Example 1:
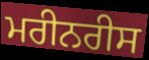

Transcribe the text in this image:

ਮਰੀਨਰੀਸ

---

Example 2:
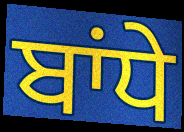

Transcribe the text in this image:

ਬਾਂਧੇ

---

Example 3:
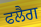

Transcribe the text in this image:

ਫਲੈਗ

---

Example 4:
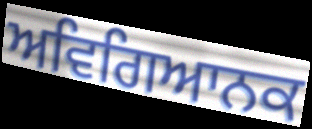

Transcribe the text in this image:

ਅਵਿਗਿਆਨਕ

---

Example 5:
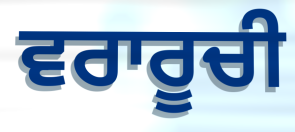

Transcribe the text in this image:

ਵਰਾਰੂਚੀ